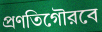
প্রণতিগৌরবে